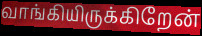
வாங்கியிருக்கிறேன்